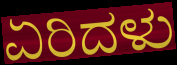
ಏರಿದಳು